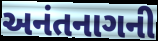
અનંતનાગની